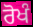
ਰੋਖੰ